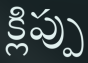
క్లిప్పు